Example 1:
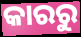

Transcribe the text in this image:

କାରରୁ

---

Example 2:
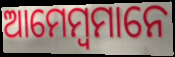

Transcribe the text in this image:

ଆମେମ୍ବମାନେ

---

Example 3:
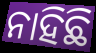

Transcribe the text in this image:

ନାହିଛି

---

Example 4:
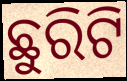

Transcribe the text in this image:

ଛୁରିଟି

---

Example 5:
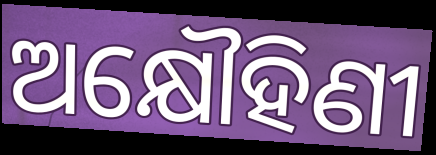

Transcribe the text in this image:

ଅକ୍ଷୌହିଣୀ